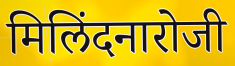
मिलिंदनारोजी